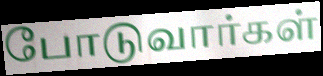
போடுவார்கள்